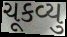
ચૂકવ્યુ